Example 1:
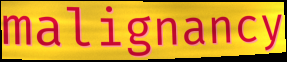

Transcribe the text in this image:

malignancy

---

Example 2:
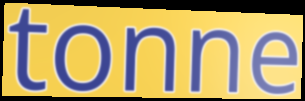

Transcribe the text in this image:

tonne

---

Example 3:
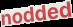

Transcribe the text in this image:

nodded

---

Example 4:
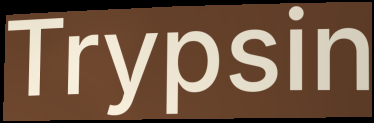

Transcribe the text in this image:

Trypsin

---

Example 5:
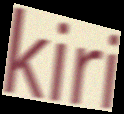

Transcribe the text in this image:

kiri